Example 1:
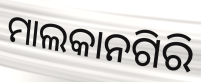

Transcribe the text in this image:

ମାଲକାନଗିରି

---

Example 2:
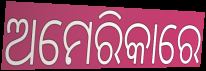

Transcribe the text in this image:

ଅମେରିକାରେ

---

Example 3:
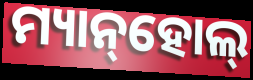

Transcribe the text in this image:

ମ୍ୟାନ୍‌ହୋଲ୍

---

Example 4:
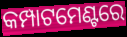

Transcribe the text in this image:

କମ୍ପାଟମେଣ୍ଟରେ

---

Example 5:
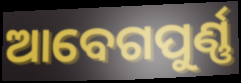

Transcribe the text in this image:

ଆବେଗପୁର୍ଣ୍ଣ